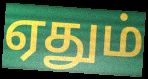
ஏதும்